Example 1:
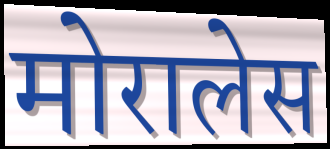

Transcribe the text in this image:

मोरालेस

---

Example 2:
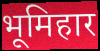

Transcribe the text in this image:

भूमिहार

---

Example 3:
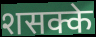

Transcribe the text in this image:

शसक्के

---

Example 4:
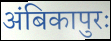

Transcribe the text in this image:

अंबिकापुरः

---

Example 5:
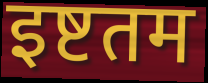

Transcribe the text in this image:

इष्टतम